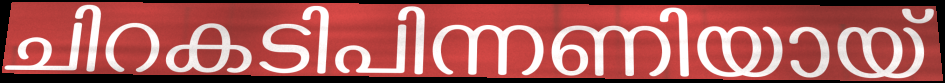
ചിറകടിപിന്നണിയായ്